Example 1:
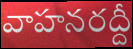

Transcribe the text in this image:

వాహనరద్దీ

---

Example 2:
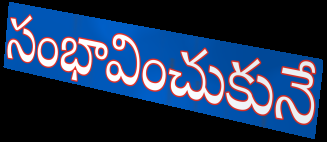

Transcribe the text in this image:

సంభావించుకునే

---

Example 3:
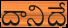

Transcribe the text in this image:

దానిదే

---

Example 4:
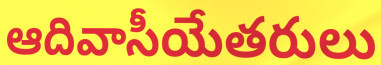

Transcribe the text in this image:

ఆదివాసీయేతరులు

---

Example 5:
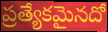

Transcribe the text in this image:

ప్రత్యేకమైనదో